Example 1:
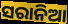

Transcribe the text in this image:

ସରାନିଆ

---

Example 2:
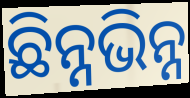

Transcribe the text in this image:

ଛିନ୍ନଭିନ୍ନ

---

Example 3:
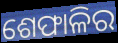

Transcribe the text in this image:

ଶେଫାଳିର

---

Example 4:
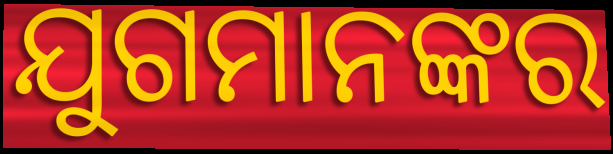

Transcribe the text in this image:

ଯୁଗମାନଙ୍କର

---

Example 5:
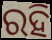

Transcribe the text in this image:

ରହି